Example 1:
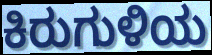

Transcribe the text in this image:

ಕಿರುಗುಳಿಯ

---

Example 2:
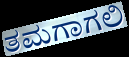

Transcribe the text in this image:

ತಮಗಾಗಲಿ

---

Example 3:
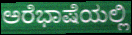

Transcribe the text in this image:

ಅರೆಭಾಷೆಯಲ್ಲಿ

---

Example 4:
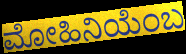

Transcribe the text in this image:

ಮೋಹಿನಿಯೆಂಬ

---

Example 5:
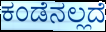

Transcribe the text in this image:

ಕಂಡೆನಲ್ಲದೆ